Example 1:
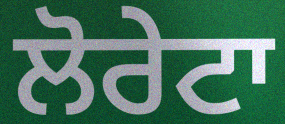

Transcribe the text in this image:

ਲੋਰੇਟਾ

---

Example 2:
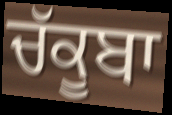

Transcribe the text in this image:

ਚੱਕੂਬਾ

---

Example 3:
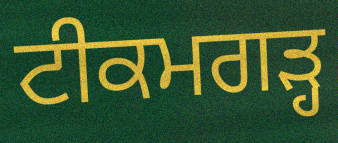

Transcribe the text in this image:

ਟੀਕਮਗੜ੍ਹ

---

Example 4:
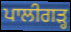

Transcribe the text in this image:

ਪਾਲੀਗੜ੍ਹ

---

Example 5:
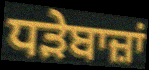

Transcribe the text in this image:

ਧੜੇਬਾਜ਼ਾਂ